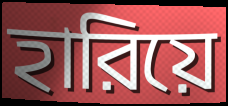
হারিয়ে